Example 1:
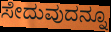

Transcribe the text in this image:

ಸೇದುವುದನ್ನೂ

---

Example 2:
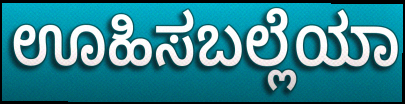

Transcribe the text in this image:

ಊಹಿಸಬಲ್ಲೆಯಾ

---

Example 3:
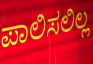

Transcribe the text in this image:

ಪಾಲಿಸಲಿಲ್ಲ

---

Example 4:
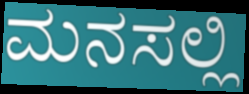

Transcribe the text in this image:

ಮನಸಲ್ಲಿ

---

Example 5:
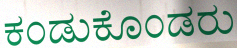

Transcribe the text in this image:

ಕಂಡುಕೊಂಡರು